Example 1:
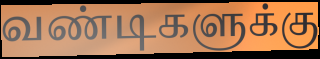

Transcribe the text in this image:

வண்டிகளுக்கு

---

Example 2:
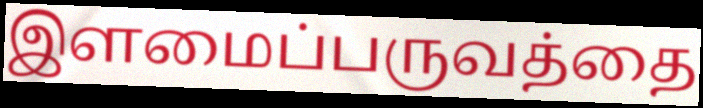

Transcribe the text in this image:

இளமைப்பருவத்தை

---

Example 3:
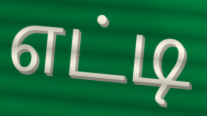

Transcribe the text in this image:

எட்டி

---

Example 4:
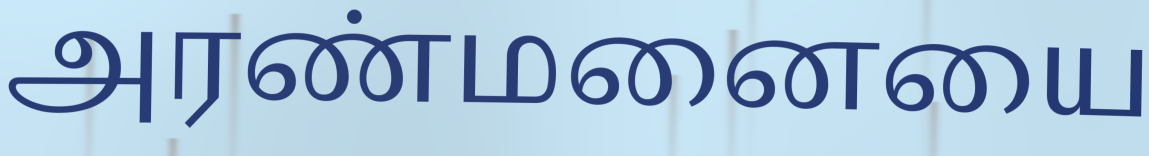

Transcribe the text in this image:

அரண்மனையை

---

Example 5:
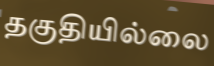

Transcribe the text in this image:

தகுதியில்லை